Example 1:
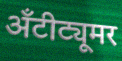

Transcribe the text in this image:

अँटीट्यूमर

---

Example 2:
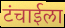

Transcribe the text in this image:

टंचाईला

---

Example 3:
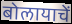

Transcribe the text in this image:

बोलायाचें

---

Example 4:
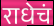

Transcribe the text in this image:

राधेचं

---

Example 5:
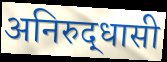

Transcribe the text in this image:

अनिरुद्धासी